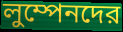
লুম্পেনদের